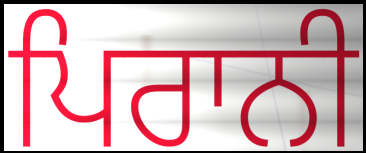
ਪਿਰਾਨੀ